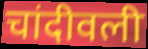
चांदीवली